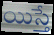
యిస్తే